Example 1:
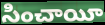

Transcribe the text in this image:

సించాయీ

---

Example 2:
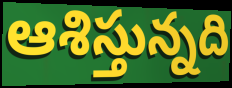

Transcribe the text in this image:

ఆశిస్తున్నది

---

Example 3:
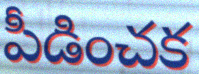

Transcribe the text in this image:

పీడించక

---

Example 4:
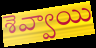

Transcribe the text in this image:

శెవ్వాయి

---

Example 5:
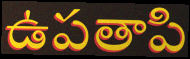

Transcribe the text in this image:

ఉపతాపి